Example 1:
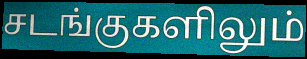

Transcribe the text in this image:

சடங்குகளிலும்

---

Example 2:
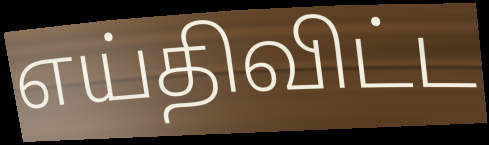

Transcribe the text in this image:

எய்திவிட்ட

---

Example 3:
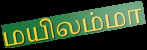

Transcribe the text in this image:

மயிலம்மா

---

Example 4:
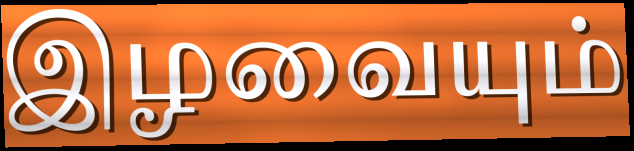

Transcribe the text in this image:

இழவையும்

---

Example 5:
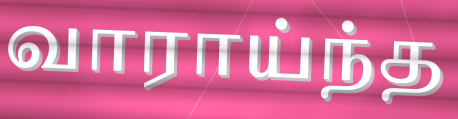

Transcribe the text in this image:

வாராய்ந்த